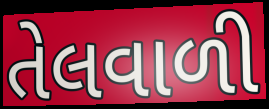
તેલવાળી